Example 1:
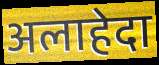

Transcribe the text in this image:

अलाहेदा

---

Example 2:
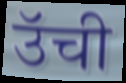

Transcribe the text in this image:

उॅची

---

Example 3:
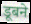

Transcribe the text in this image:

डूबने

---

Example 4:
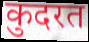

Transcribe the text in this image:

कुदरत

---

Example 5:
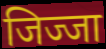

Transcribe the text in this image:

जिज्जा